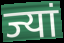
ज्यां